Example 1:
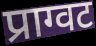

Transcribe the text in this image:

प्राग्वट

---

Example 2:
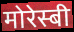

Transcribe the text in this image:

मोरेस्बी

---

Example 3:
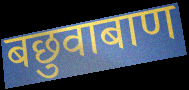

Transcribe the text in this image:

बछुवाबाण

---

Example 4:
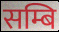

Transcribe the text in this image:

सम्बि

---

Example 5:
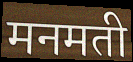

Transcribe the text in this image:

मनमती